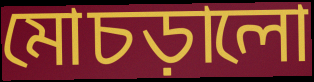
মোচড়ালো